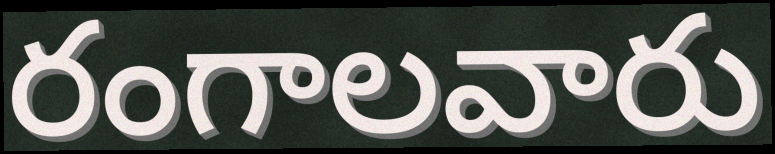
రంగాలవారు